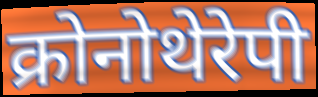
क्रोनोथेरेपी